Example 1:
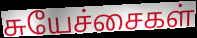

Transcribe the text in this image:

சுயேச்சைகள்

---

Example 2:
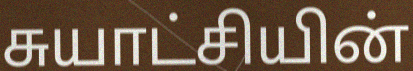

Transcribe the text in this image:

சுயாட்சியின்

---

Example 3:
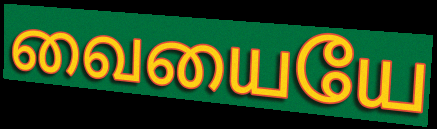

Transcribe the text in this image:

வையையே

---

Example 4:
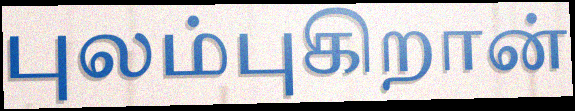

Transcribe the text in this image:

புலம்புகிறான்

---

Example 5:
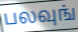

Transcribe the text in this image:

பலவுங்